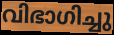
വിഭാഗിച്ചു